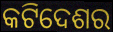
କଟିଦେଶର